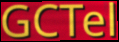
GCTel